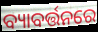
ବ୍ୟାବର୍ତ୍ତନରେ